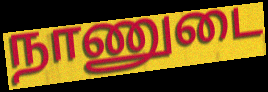
நாணுடை